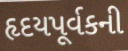
હૃદયપૂર્વકની